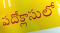
పదోక్లాసులో